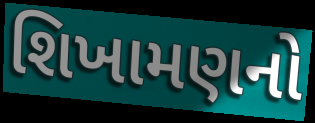
શિખામણનો